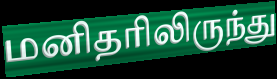
மனிதரிலிருந்து